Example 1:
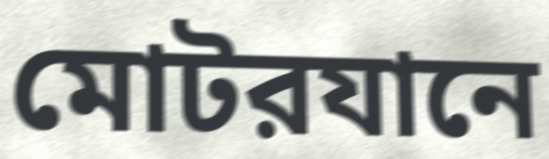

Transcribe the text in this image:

মোটরযানে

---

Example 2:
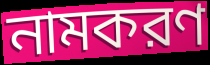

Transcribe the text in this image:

নামকরণ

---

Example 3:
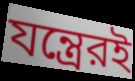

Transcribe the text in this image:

যন্ত্রেরই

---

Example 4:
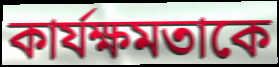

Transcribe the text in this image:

কার্যক্ষমতাকে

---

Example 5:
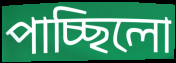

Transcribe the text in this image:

পাচ্ছিলো